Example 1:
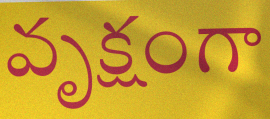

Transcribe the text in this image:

వృక్షంగా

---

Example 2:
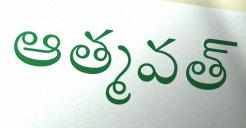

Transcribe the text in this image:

ఆత్మవత్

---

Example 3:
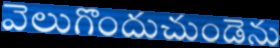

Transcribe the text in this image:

వెలుగొందుచుండెను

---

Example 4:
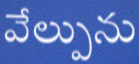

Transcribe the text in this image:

వేల్పును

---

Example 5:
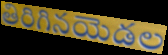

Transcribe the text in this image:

తిరిగినయెడల